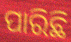
ପାରିଛି